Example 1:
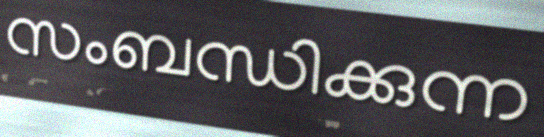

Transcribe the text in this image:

സംബന്ധിക്കുന്ന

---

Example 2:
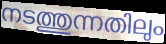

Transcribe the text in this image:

നടത്തുന്നതിലും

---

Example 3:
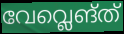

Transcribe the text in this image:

വേവ്ലെങ്ത്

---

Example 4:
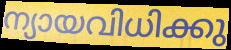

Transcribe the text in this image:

ന്യായവിധിക്കു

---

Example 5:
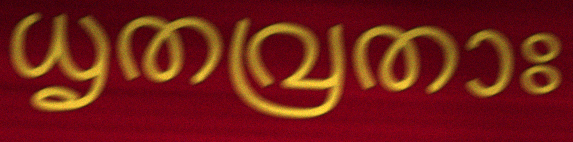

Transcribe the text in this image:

ധൃതവ്രതാഃ